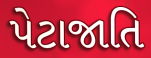
પેટાજાતિ